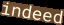
indeed